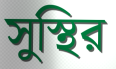
সুস্থির